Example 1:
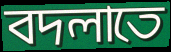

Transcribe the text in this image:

বদলাতে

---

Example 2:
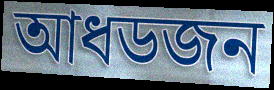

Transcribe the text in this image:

আধডজন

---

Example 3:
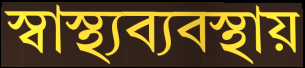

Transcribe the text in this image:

স্বাস্থ্যব্যবস্থায়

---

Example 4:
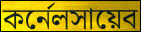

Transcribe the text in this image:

কর্নেলসায়েব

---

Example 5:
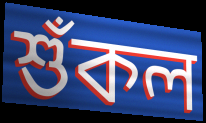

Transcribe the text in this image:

শুঁকল